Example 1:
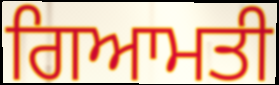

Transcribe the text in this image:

ਗਿਆਮਤੀ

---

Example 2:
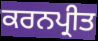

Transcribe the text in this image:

ਕਰਨਪ੍ਰੀਤ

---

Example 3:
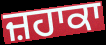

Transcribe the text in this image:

ਜ਼ਹਾਕਾ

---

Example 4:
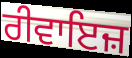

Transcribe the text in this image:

ਰੀਵਾਇਜ਼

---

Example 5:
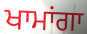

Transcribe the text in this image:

ਖਾਮਾਂਗਾ